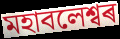
মহাবলেশ্বৰ